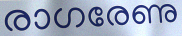
രാഗരേണു